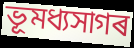
ভূমধ্যসাগৰ